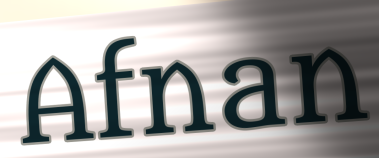
Afnan